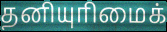
தனியுரிமைக்